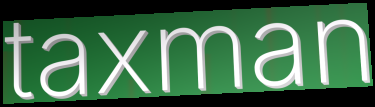
taxman